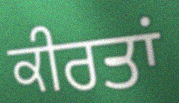
ਕੀਰਤਾਂ